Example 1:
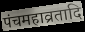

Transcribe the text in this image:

पंचमहाव्रतादि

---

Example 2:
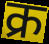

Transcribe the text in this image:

क्र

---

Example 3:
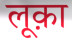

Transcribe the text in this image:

लूक़ा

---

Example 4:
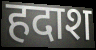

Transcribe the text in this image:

हदाश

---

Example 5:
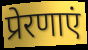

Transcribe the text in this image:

प्रेरणाएं